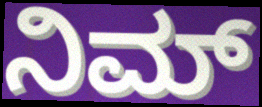
ನಿಮ್